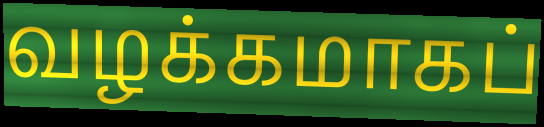
வழக்கமாகப்